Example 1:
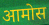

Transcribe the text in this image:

आमोस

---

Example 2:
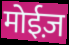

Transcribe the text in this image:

मोईज़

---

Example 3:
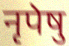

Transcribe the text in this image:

नृपेषु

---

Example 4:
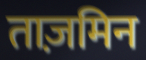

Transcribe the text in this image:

ताज़मिन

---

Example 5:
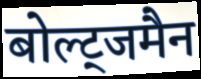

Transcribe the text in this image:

बोल्ट्जमैन